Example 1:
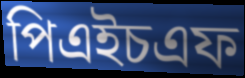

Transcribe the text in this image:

পিএইচএফ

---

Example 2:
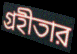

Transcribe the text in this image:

গ্রহীতার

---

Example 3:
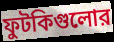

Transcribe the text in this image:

ফুটকিগুলোর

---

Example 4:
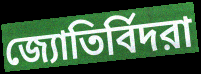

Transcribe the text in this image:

জ্যোতির্বিদরা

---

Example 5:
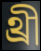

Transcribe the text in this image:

থ্রী